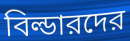
বিল্ডারদের